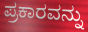
ಪ್ರಕಾರವನ್ನು